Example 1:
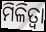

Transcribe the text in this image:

ମିଳିତ୍ଵା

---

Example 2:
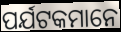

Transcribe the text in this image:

ପର୍ଯଟକମାନେ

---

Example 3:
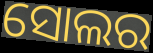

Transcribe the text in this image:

ସୋଲର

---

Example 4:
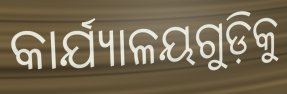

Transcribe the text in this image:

କାର୍ଯ୍ୟାଳୟଗୁଡ଼ିକୁ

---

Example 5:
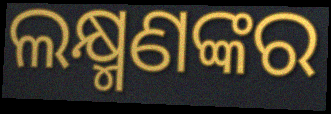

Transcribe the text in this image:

ଲକ୍ଷ୍ମଣଙ୍କର